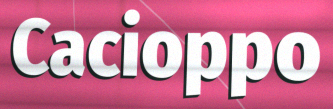
Cacioppo